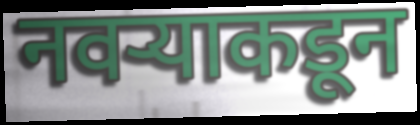
नवऱ्याकडून